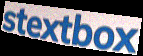
stextbox